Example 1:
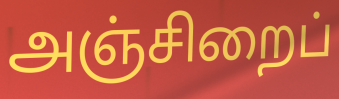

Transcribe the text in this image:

அஞ்சிறைப்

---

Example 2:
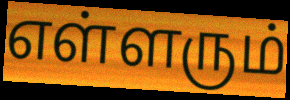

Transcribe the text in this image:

எள்ளரும்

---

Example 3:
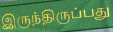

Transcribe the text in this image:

இருந்திருப்பது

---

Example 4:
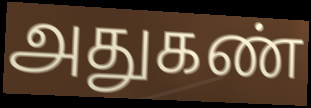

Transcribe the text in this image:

அதுகண்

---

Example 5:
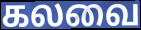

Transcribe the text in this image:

கலவை